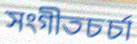
সংগীতচর্চা